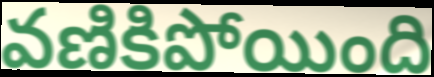
వణికిపోయింది